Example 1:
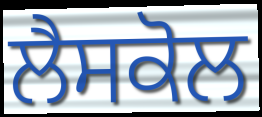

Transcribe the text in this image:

ਲੈਸਕੋਲ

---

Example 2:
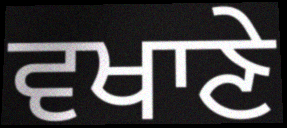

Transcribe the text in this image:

ਵਖਾਣੇ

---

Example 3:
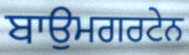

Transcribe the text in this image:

ਬਾਉਮਗਰਟੇਨ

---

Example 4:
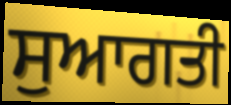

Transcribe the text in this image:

ਸੁਆਗਤੀ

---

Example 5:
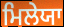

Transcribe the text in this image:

ਮਿਲੇਯਾ